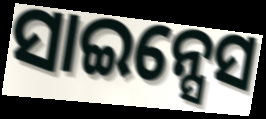
ସାଇନ୍ସେସ